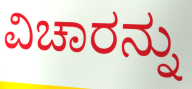
ವಿಚಾರನ್ನು